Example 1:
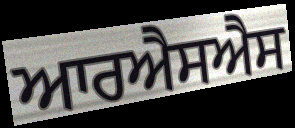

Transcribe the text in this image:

ਆਰਐਸਐਸ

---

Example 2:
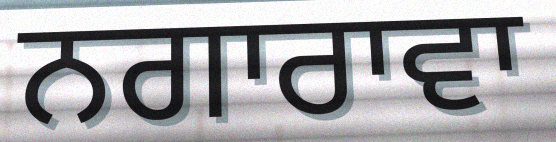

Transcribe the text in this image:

ਨਗਾਰਾਵਾ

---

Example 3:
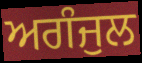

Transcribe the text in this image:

ਅਗੰਜੁਲ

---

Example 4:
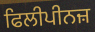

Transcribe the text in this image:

ਫਿਲੀਪੀਨਜ਼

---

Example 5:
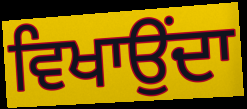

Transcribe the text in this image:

ਵਿਖਾਉਂਦਾ